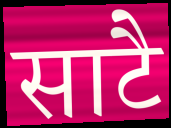
साटै